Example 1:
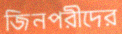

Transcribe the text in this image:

জিনপরীদের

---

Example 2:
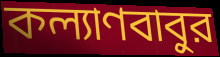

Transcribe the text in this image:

কল্যাণবাবুর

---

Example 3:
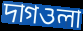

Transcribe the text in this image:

দাগওলা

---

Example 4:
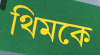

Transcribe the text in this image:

থিমকে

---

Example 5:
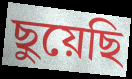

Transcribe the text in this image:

ছুয়েছি